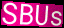
SBUs